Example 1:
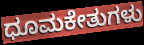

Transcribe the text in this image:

ಧೂಮಕೇತುಗಳು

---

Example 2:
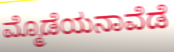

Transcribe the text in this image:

ಮ್ಮೊಡೆಯನಾವೆಡೆ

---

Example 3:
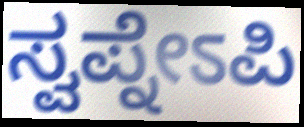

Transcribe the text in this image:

ಸ್ವಪ್ನೇಽಪಿ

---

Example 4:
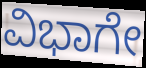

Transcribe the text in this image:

ವಿಭಾಗೇ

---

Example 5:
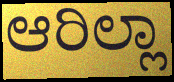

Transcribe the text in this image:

ಆರಿಲ್ಲಾ